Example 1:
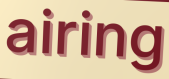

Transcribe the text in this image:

airing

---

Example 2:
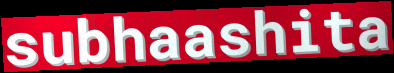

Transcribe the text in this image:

subhaashita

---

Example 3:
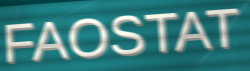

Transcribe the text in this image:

FAOSTAT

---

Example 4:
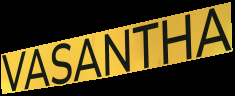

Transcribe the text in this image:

VASANTHA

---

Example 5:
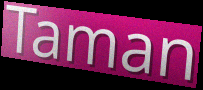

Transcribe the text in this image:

Taman